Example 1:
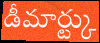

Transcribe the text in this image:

డీమార్ట్కు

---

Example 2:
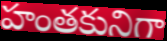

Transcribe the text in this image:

హంతకునిగా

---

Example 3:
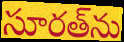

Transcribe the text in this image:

సూరత్‌ను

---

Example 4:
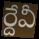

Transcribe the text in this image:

ర్దేవీ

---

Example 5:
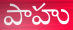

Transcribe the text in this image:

పాహు